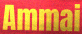
Ammai